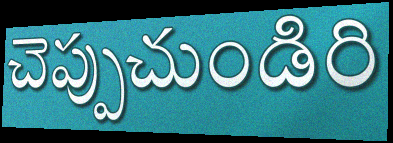
చెప్పుచుండిరి